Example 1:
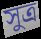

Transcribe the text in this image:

সুত্ৰ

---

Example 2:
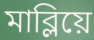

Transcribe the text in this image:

মাব্লিয়ে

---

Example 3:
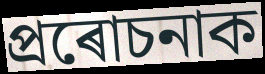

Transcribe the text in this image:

প্ৰৰোচনাক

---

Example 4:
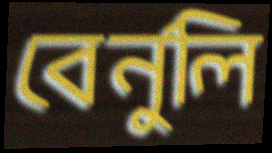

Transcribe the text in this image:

বেৰ্নুলি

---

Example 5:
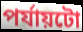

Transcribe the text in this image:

পৰ্যায়টো